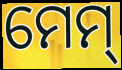
ମେମ୍